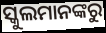
ସ୍କୁଲମାନଙ୍କରୁ